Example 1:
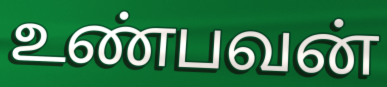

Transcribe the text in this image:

உண்பவன்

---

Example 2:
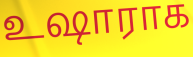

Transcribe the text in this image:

உஷாராக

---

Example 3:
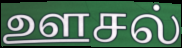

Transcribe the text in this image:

ஊசல்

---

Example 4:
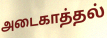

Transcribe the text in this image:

அடைகாத்தல்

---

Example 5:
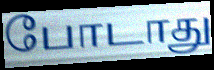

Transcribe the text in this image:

போடாது